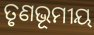
ତୃଣଭୂମୀୟ